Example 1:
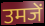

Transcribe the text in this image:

उमजें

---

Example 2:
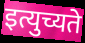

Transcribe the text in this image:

इत्युच्यते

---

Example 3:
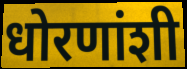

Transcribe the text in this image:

धोरणांशी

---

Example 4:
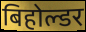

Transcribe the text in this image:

बिहोल्डर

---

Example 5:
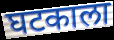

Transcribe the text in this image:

घटकाला